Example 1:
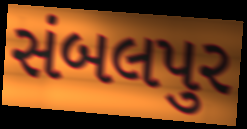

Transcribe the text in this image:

સંબલપુર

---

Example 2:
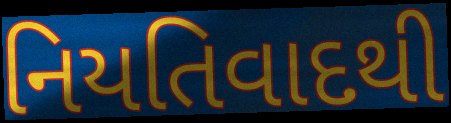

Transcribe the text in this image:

નિયતિવાદથી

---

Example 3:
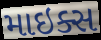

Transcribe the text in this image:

માઇક્સ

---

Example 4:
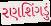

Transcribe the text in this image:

રણશિંગડું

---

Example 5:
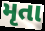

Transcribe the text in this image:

મૃતા